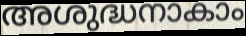
അശുദ്ധനാകാം